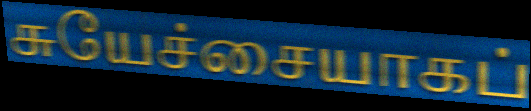
சுயேச்சையாகப்